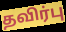
தவிர்பு